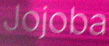
Jojoba